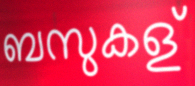
ബസുകള്